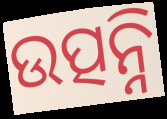
ଉତ୍ପନ୍ନି